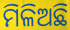
ମିଳିଅଛି